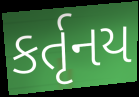
કર્તૃનય